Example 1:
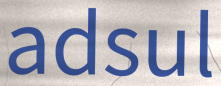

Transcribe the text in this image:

adsul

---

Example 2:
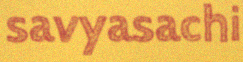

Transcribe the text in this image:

savyasachi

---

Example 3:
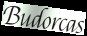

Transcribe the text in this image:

Budorcas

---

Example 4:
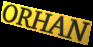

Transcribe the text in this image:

ORHAN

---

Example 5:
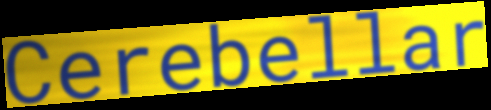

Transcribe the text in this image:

Cerebellar